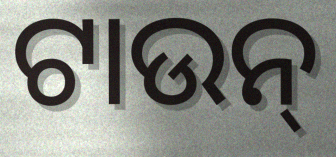
ଟାଉନ୍